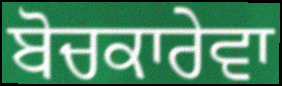
ਬੋਚਕਾਰੇਵਾ